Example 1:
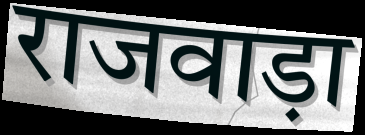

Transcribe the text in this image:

राजवाड़ा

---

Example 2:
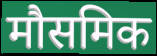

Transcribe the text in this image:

मौसमिक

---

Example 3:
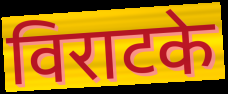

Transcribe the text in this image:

विराटके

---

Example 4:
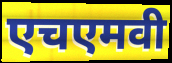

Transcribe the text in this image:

एचएमवी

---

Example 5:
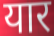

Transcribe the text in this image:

यार